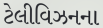
ટેલીવિઝનના